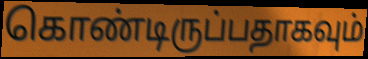
கொண்டிருப்பதாகவும்